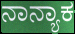
ನಾನ್ಯಾಕ